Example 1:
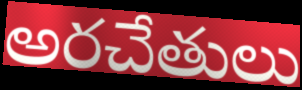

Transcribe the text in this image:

అరచేతులు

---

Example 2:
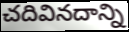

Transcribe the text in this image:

చదివినదాన్ని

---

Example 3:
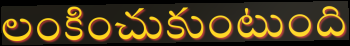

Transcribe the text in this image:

లంకించుకుంటుంది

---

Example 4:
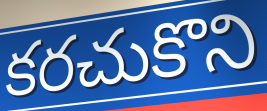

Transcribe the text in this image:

కరచుకొని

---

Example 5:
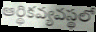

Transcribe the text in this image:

ఆర్థికవ్యవస్థలో